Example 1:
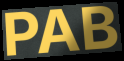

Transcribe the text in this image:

PAB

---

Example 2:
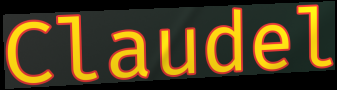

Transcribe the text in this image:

Claudel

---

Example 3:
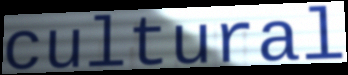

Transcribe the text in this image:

cultural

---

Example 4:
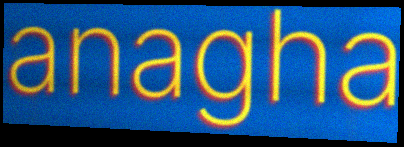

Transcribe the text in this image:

anagha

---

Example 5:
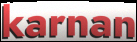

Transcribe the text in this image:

karnan